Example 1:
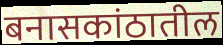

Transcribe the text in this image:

बनासकांठातील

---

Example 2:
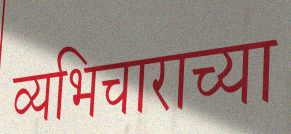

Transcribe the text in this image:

व्यभिचाराच्या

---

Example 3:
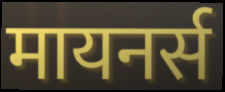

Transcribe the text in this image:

मायनर्स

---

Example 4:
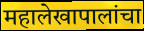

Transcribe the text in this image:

महालेखापालांचा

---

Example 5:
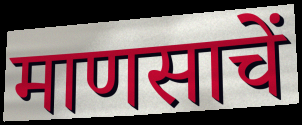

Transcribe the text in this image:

माणसाचें